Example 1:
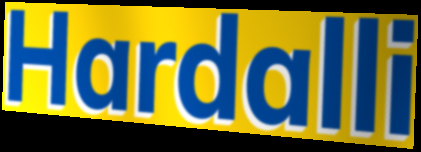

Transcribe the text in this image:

Hardalli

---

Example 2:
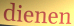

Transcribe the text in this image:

dienen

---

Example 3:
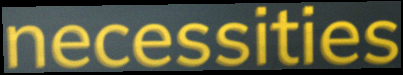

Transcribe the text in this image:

necessities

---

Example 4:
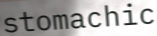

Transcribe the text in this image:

stomachic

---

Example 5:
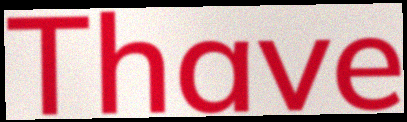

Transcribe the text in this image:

Thave